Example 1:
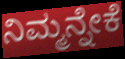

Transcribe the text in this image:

ನಿಮ್ಮನ್ನೇಕೆ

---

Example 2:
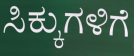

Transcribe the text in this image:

ಸಿಕ್ಕುಗಳಿಗೆ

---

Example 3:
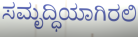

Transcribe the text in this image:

ಸಮೃದ್ಧಿಯಾಗಿರಲಿ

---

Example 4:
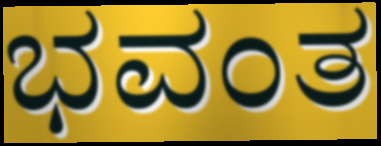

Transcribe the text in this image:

ಭವಂತ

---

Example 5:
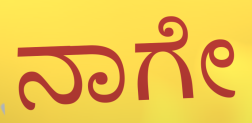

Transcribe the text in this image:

ನಾಗೇ